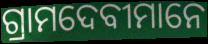
ଗ୍ରାମଦେବୀମାନେ